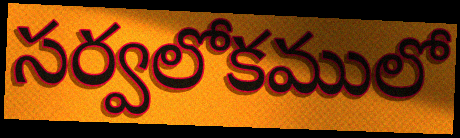
సర్వలోకములో